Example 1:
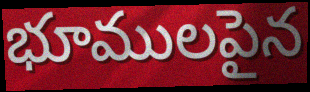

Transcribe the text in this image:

భూములపైన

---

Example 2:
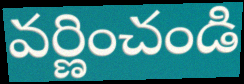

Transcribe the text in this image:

వర్ణించండి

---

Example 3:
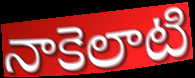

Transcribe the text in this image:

నాకెలాటి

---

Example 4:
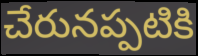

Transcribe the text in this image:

చేరునప్పటికి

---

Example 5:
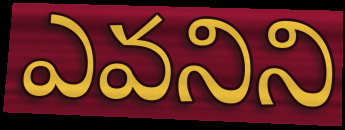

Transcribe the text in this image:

ఎవనిని